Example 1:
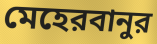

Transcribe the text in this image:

মেহেরবানুর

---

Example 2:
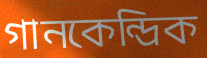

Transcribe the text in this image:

গানকেন্দ্রিক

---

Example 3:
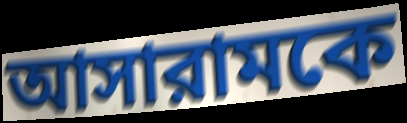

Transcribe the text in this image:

আসারামকে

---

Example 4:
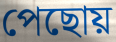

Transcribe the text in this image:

পেছোয়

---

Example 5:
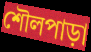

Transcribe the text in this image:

শৌলপাড়া